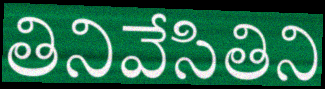
తినివేసితిని